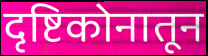
दृष्टिकोनातून